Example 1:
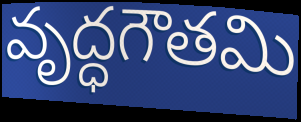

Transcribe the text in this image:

వృద్ధగౌతమి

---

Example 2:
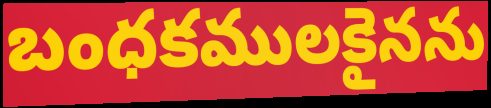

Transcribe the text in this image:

బంధకములకైనను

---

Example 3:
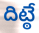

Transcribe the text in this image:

దిట్ఠే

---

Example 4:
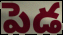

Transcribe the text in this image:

పెడ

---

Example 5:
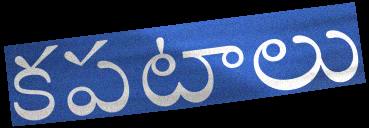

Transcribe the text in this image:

కపటాలు